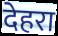
देहरा